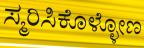
ಸ್ಮರಿಸಿಕೊಳ್ಳೋಣ